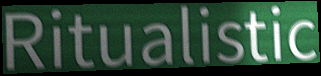
Ritualistic